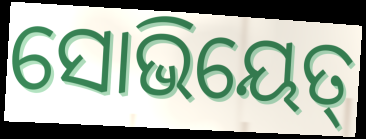
ସୋଭିୟେତ୍